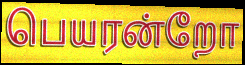
பெயரன்றோ